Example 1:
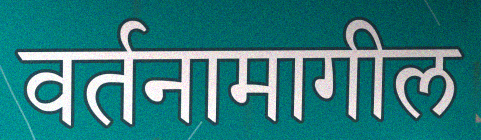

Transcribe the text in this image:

वर्तनामागील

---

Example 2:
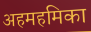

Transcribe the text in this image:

अहमहमिका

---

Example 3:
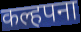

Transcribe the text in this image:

कल्हपना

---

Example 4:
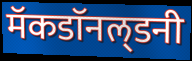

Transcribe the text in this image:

मॅकडॉनल्डनी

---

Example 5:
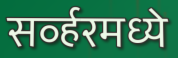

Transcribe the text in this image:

सर्व्हरमध्ये